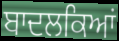
ਬਾਦਲਕਿਆਂ